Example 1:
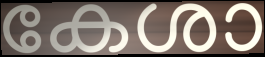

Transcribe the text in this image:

കേശാ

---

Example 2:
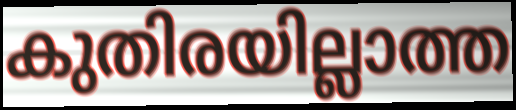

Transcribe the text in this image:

കുതിരയില്ലാത്ത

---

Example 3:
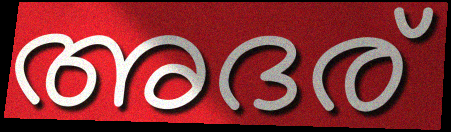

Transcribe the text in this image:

അദര്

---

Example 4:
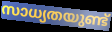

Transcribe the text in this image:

സാധ്യതയുണ്ട്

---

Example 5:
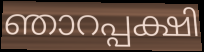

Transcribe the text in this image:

ഞാറപ്പക്ഷി